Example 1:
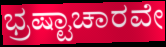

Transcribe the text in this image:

ಭ್ರಷ್ಟಾಚಾರವೇ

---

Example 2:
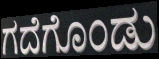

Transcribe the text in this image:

ಗದೆಗೊಂಡು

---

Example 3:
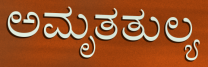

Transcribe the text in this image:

ಅಮೃತತುಲ್ಯ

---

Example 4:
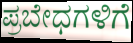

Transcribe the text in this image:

ಪ್ರಬೇಧಗಳಿಗೆ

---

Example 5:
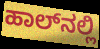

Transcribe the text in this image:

ಹಾಲ್‌ನಲ್ಲಿ